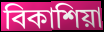
বিকাশিয়া